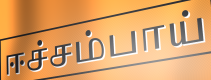
ஈச்சம்பாய்